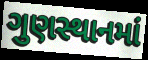
ગુણસ્થાનમાં